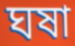
ঘষা